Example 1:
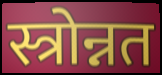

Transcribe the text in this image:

स्त्रोन्नत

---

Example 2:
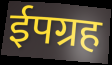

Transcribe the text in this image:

ईपग्रह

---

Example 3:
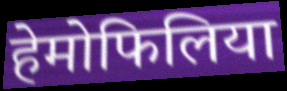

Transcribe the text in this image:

हेमोफिलिया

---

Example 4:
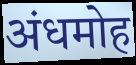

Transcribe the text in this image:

अंधमोह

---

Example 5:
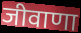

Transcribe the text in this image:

जीवाणा